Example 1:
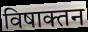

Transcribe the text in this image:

विषाक्तन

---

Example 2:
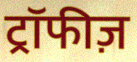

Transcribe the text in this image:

ट्रॉफीज़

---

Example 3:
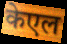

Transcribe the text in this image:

केएल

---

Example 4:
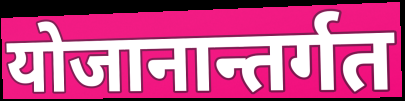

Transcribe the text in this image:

योजानान्तर्गत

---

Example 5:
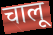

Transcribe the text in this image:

चालू